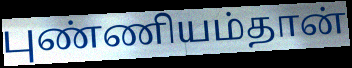
புண்ணியம்தான்